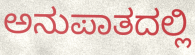
ಅನುಪಾತದಲ್ಲಿ